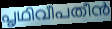
പൃഥിവീപതീൻ